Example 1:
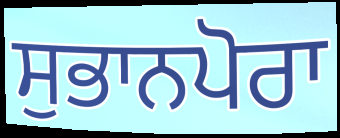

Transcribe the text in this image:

ਸੁਭਾਨਪੋਰਾ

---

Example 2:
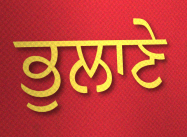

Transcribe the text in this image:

ਭੁਲਾਣੇ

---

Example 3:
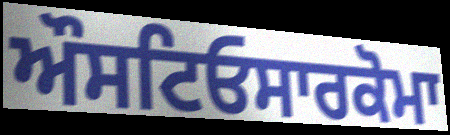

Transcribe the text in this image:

ਔਸਟਿਓਸਾਰਕੋਮਾ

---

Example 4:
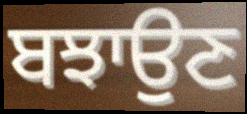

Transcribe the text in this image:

ਬਝਾਉਣ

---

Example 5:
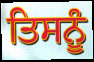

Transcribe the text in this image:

ਤਿਸਨੂੰ